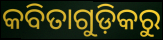
କବିତାଗୁଡ଼ିକରୁ